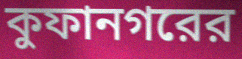
কুফানগরের